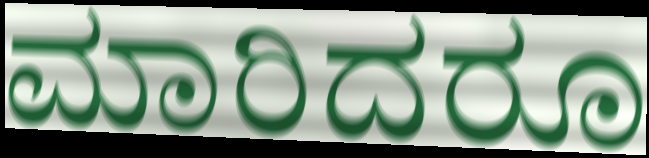
ಮಾರಿದರೂ